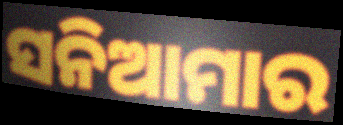
ସନିଆମାର